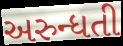
અરુન્ધતી